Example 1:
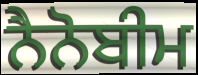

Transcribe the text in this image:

ਨੈਨੋਬੀਮ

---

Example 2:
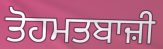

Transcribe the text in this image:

ਤੋਹਮਤਬਾਜ਼ੀ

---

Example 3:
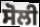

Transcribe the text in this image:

ਸੋਲੀ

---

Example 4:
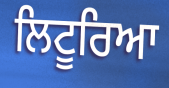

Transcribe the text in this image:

ਲਿਟੂਰਿਆ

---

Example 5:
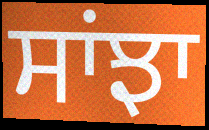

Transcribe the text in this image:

ਸਾਂਝਾ